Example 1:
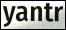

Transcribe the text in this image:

yantr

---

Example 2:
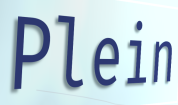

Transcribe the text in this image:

Plein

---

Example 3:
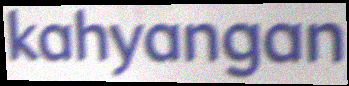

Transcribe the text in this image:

kahyangan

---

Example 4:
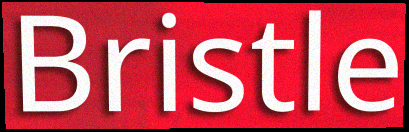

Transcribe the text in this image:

Bristle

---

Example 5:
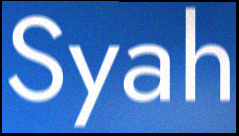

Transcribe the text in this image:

Syah